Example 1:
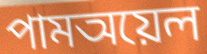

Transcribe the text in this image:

পামঅয়েল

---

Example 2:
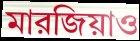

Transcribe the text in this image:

মারজিয়াও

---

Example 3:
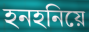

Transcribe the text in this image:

হনহনিয়ে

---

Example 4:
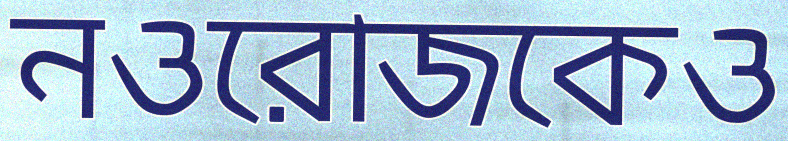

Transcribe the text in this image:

নওরোজকেও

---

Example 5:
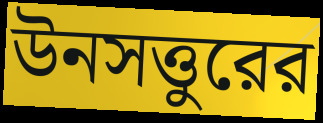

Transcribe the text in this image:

উনসত্তুরের